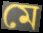
মে